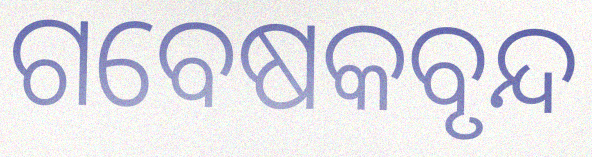
ଗବେଷକବୃନ୍ଦ